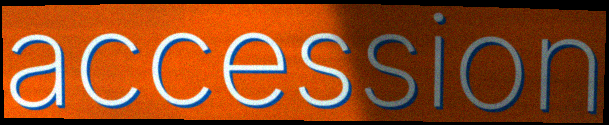
accession